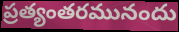
ప్రత్యంతరమునందు